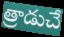
త్రాడుచే